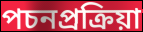
পচনপ্রক্রিয়া